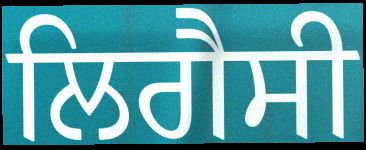
ਲਿਗੈਸੀ